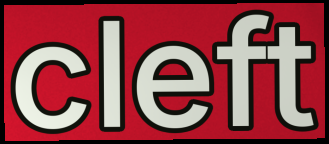
cleft